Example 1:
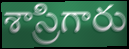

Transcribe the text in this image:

శాస్రిగారు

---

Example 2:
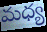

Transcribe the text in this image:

మధ్య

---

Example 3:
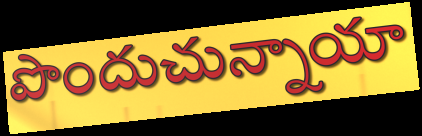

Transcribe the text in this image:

పొందుచున్నాయా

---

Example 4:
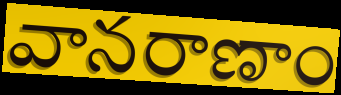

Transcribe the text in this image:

వానరాణాం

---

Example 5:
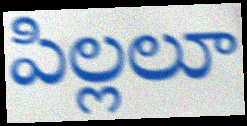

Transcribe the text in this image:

పిల్లలూ